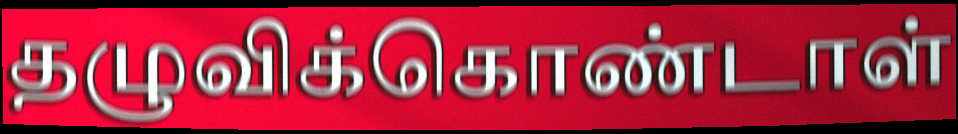
தழுவிக்கொண்டாள்